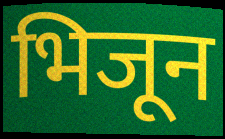
भिजून